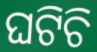
ଘଟିଚି